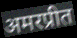
अमरप्रीत